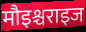
मौइश्चराइज